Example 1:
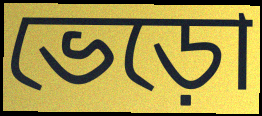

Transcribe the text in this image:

ভেড়ো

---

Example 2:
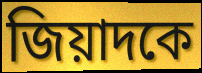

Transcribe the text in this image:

জিয়াদকে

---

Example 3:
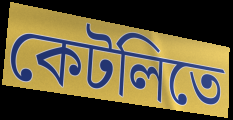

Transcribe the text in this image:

কেটলিতে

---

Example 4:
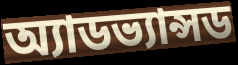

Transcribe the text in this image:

অ্যাডভ্যান্সড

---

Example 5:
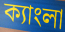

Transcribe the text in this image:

ক্যাংলা